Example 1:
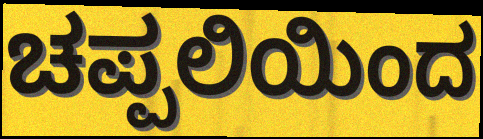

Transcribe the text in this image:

ಚಪ್ಪಲಿಯಿಂದ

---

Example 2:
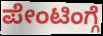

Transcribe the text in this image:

ಪೇಂಟಿಂಗ್ಗೆ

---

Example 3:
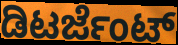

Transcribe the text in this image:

ಡಿಟರ್ಜೆಂಟ್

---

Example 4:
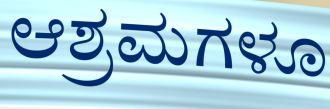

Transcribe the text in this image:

ಆಶ್ರಮಗಳೂ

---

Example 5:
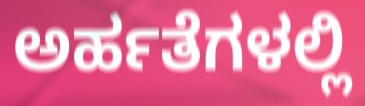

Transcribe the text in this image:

ಅರ್ಹತೆಗಳಲ್ಲಿ